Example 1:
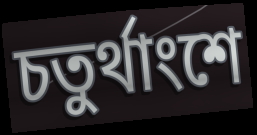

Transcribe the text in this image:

চতুর্থাংশে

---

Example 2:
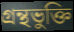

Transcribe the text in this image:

গ্রন্থভুক্তি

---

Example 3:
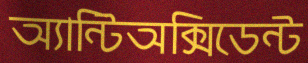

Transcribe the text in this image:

অ্যান্টিঅক্সিডেন্ট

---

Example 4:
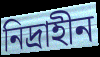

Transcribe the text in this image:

নিদ্রাহীন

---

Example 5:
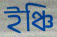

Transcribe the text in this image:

ইঞ্চি